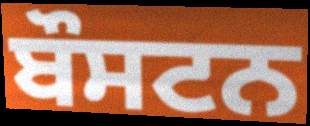
ਬੌਸਟਨ